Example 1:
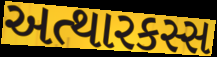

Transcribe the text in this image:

અત્થારકસ્સ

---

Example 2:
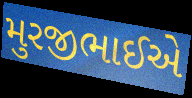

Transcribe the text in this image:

મુરજીભાઈએ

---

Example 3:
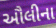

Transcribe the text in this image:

ઔલીના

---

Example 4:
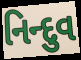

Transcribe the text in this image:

નિન્દુવ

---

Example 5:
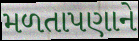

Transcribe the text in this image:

મળતાપણાને